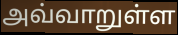
அவ்வாறுள்ள